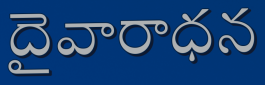
దైవారాధన